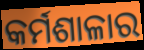
କର୍ମଶାଳାର